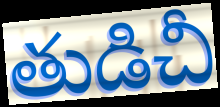
తుడిచీ